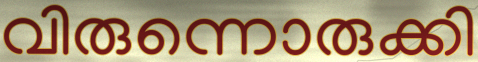
വിരുന്നൊരുക്കി